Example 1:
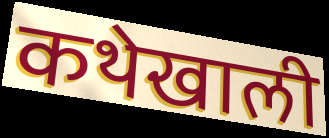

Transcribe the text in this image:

कथेखाली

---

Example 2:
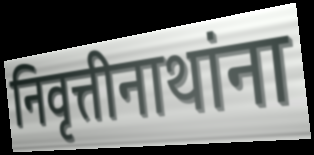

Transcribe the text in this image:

निवृत्तीनाथांना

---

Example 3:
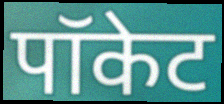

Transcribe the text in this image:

पॉकेट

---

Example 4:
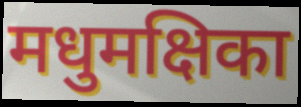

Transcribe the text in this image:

मधुमक्षिका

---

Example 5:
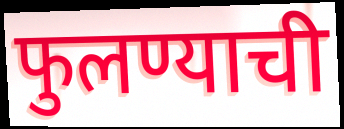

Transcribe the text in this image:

फुलण्याची